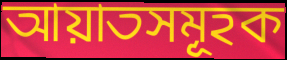
আয়াতসমূহক